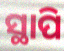
ସ୍ଥାପି